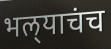
भल्याचंच